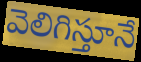
వెలిగిస్తూనే